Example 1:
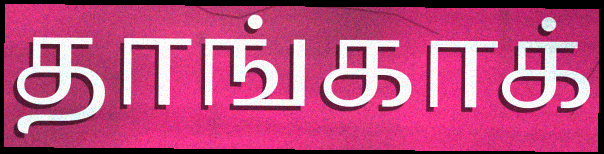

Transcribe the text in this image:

தாங்காக்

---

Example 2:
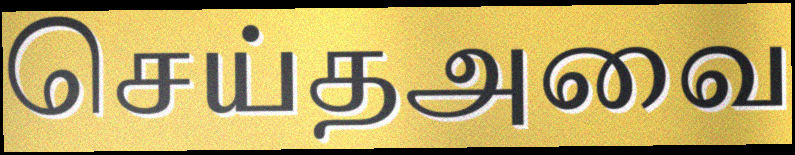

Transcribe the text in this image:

செய்தஅவை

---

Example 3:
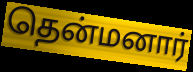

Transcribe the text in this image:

தென்மனார்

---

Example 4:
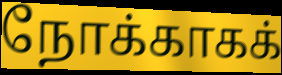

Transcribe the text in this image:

நோக்காகக்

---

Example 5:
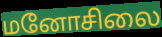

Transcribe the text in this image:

மனோசிலை